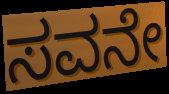
ಸವನೇ